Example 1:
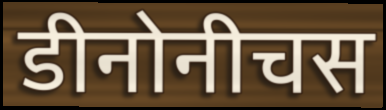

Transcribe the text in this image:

डीनोनीचस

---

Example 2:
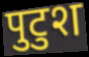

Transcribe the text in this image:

पुटुश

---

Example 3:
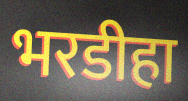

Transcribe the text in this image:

भरडीहा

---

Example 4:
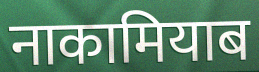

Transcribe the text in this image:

नाकामियाब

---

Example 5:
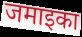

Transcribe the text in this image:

जमाइका